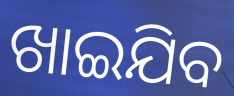
ଖାଇଯିବ